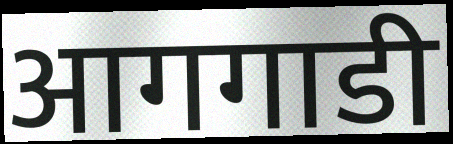
आगगाडी